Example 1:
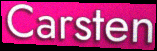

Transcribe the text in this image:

Carsten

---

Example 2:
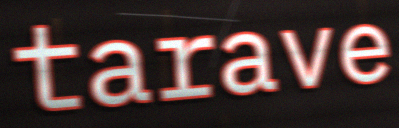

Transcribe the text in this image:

tarave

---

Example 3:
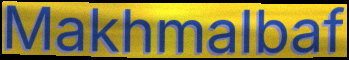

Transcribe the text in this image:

Makhmalbaf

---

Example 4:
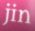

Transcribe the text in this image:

jin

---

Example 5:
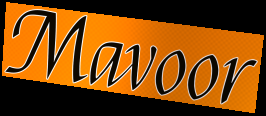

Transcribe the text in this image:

Mavoor